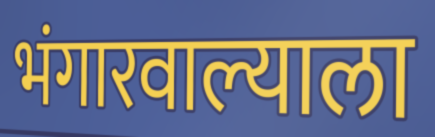
भंगारवाल्याला